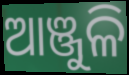
ଆଞ୍ଜୁଳି